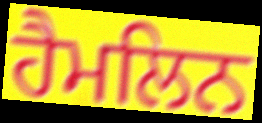
ਹੈਮਲਿਨ